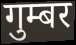
गुम्बर